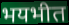
भयभीत